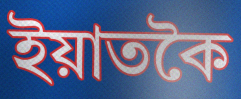
ইয়াতকৈ